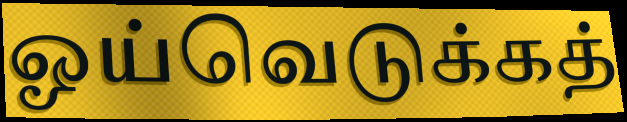
ஓய்வெடுக்கத்